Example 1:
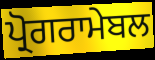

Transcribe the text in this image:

ਪ੍ਰੋਗਰਾਮੇਬਲ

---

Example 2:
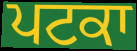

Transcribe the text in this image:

ਪਟਕਾ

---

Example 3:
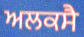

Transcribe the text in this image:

ਅਲਕਸੈ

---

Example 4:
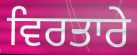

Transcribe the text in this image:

ਵਿਰਤਾਰੇ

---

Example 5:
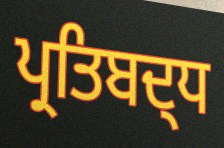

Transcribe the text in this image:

ਪ੍ਰਤਿਬਦ੍ਧ